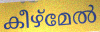
കീഴ്മേൽ